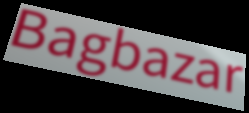
Bagbazar